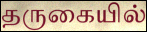
தருகையில்